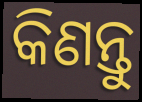
କିଣନ୍ତୁ